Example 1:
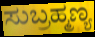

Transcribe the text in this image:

ಸುಬ್ರಹ್ಮಣ್ಯ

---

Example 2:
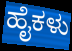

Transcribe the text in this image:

ಹೈಕಳು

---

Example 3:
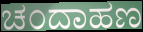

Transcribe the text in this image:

ಚಂದಾಹಣ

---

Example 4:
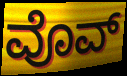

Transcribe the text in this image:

ವೊವ್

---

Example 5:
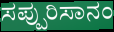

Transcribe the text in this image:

ಸಪ್ಪುರಿಸಾನಂ